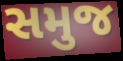
સમુજ